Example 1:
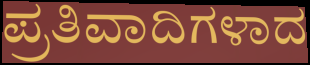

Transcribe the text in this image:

ಪ್ರತಿವಾದಿಗಳಾದ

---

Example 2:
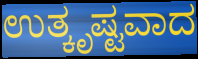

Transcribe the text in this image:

ಉತ್ಕೃಷ್ಟವಾದ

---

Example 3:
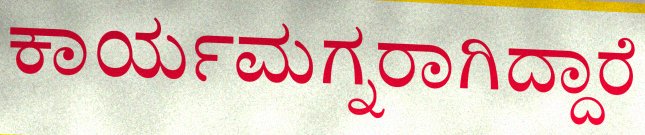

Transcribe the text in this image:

ಕಾರ್ಯಮಗ್ನರಾಗಿದ್ದಾರೆ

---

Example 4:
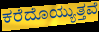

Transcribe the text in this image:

ಕರೆದೊಯ್ಯುತ್ತವೆ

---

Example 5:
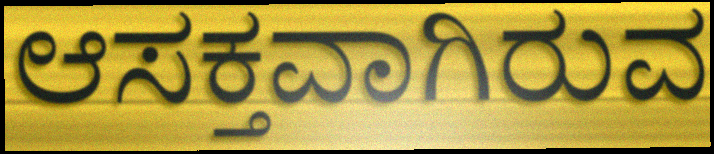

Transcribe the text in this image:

ಆಸಕ್ತವಾಗಿರುವ